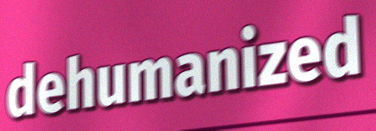
dehumanized